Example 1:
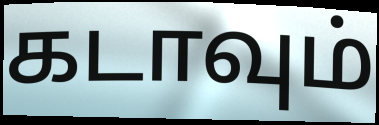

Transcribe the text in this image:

கடாவும்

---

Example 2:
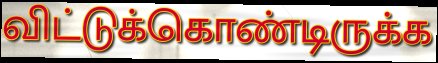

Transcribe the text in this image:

விட்டுக்கொண்டிருக்க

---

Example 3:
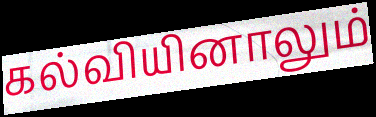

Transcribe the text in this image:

கல்வியினாலும்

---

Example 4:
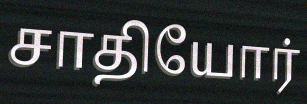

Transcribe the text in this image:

சாதியோர்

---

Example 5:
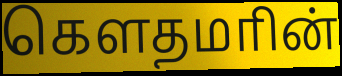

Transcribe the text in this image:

கௌதமரின்